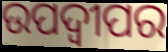
ଉପଦ୍ୱୀପର